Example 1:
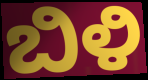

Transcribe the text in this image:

ಬಿಳಿ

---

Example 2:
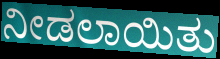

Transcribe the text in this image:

ನೀಡಲಾಯಿತು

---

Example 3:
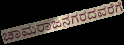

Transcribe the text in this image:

ಚಾಮರಾಜನಗರದವರೆಗೆ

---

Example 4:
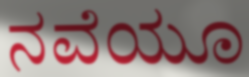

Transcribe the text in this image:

ನವೆಯೂ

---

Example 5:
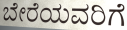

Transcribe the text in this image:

ಬೇರೆಯವರಿಗೆ